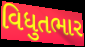
વિધુતભાર